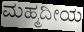
ಮಹ್ಮದೀಯ